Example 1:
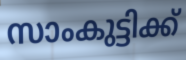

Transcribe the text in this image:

സാംകുട്ടിക്ക്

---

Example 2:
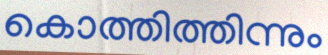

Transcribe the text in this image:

കൊത്തിത്തിന്നും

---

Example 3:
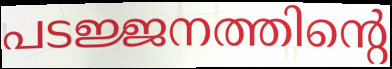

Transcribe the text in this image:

പടജ്ജനത്തിന്റെ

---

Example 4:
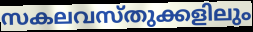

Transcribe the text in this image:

സകലവസ്തുക്കളിലും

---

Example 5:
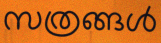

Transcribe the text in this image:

സത്രങ്ങൾ